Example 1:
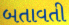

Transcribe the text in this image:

બતાવતી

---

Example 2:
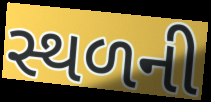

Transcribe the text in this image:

સ્થળની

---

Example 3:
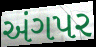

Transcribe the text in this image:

અંગપર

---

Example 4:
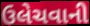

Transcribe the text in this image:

ઉલેચવાની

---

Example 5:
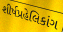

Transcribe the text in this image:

શીર્ષપ્રહેલિકાંગ